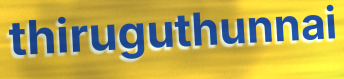
thiruguthunnai